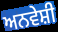
ਅਨਵੇਸ਼ੀ